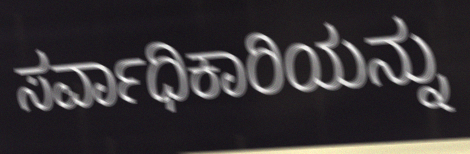
ಸರ್ವಾಧಿಕಾರಿಯನ್ನು